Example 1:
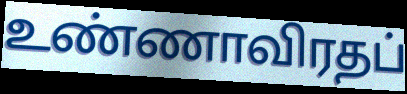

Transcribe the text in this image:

உண்ணாவிரதப்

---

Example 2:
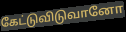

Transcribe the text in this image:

கேட்டுவிடுவானோ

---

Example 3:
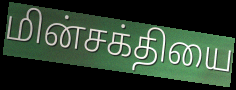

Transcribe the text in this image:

மின்சக்தியை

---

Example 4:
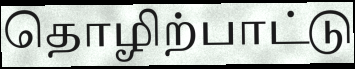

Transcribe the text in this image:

தொழிற்பாட்டு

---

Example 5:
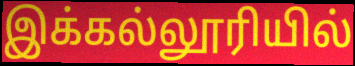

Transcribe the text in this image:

இக்கல்லூரியில்